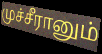
முச்சீரானும்